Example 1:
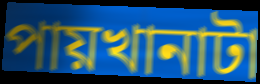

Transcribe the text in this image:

পায়খানাটা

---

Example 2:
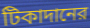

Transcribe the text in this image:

টিকাদানের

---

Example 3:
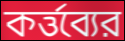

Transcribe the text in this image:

কর্ত্তব্যের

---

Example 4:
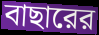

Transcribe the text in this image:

বাছারের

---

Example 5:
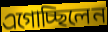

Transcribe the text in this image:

এগোচ্ছিলেন